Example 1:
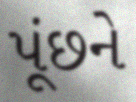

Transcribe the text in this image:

પૂંછને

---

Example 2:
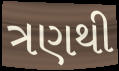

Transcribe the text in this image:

ત્રણથી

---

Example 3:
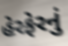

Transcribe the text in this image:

હેરફેરનું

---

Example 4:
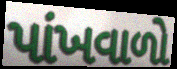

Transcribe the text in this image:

પાંખવાળો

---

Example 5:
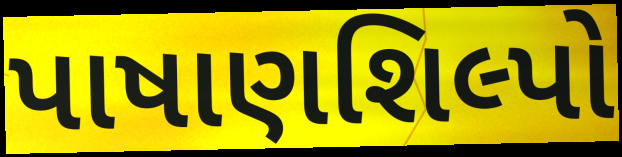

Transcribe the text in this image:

પાષાણશિલ્પો